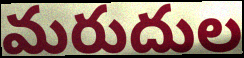
మరుదుల